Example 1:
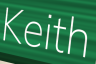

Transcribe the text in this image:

Keith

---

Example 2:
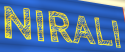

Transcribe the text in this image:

NIRALI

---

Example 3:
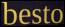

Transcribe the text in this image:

besto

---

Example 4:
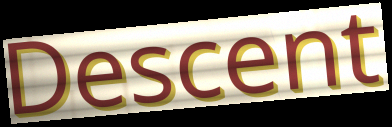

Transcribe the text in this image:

Descent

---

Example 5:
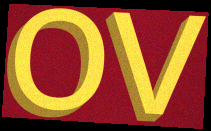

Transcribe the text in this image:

ov